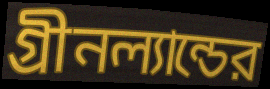
গ্রীনল্যান্ডের